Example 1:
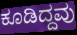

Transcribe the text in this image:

ಕೂಡಿದ್ದವು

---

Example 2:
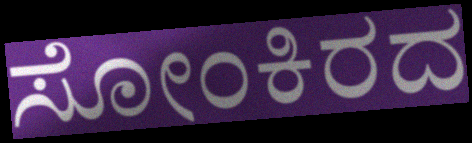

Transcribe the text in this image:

ಸೋಂಕಿರದ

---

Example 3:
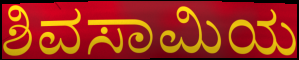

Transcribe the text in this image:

ಶಿವಸಾಮಿಯ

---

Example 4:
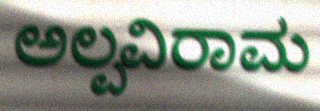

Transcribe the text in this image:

ಅಲ್ಪವಿರಾಮ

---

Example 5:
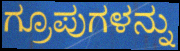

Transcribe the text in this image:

ಗ್ರೂಪುಗಳನ್ನು